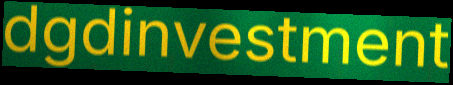
dgdinvestment